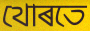
থোৰতে